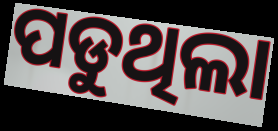
ପଡୁଥିଲା